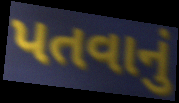
પતવાનું